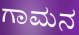
ಗಾಮನ